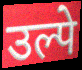
उल्पे